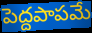
పెద్దపాపమే